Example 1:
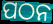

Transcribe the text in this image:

ପଠନ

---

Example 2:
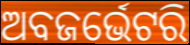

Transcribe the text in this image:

ଅବଜର୍ଭେଟରି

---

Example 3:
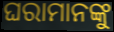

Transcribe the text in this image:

ଘରାମାନଙ୍କୁ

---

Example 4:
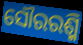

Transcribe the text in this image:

ସୌରରଶ୍ମି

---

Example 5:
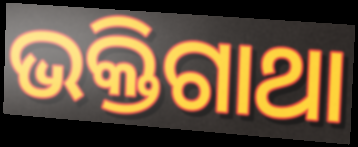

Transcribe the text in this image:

ଭକ୍ତିଗାଥା